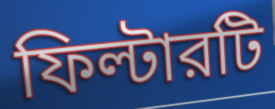
ফিল্টারটি